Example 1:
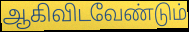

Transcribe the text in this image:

ஆகிவிடவேண்டும்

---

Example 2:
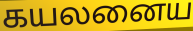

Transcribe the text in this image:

கயலனைய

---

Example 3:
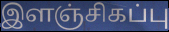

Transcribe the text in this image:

இளஞ்சிகப்பு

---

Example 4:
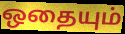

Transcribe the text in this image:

ஒதையும்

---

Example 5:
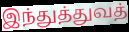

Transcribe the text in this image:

இந்துத்துவத்